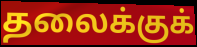
தலைக்குக்